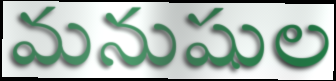
మనుషుల